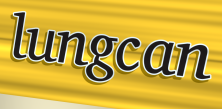
lungcan